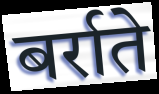
बर्राते